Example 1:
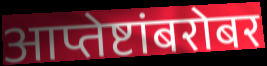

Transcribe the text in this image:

आप्तेष्टांबरोबर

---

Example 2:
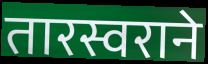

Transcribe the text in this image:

तारस्वराने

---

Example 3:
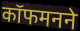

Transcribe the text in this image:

कॉफमनने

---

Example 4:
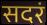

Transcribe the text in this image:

सदरं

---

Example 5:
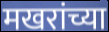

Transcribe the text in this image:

मखरांच्या